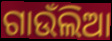
ଗାଉଁଲିଆ